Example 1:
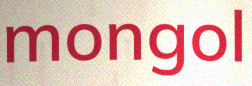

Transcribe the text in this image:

mongol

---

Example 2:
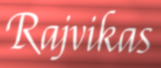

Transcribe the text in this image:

Rajvikas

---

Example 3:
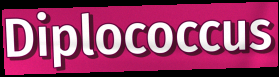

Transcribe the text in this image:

Diplococcus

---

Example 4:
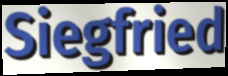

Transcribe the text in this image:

Siegfried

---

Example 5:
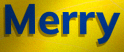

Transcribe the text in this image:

Merry